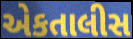
એકતાલીસ